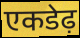
एकडेढ़